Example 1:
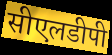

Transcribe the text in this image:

सीएलडीपी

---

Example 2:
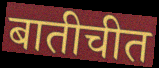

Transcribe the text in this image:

बातीचीत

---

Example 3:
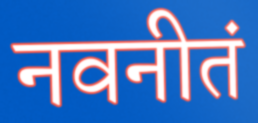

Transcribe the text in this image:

नवनीतं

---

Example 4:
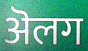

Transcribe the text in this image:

ऄलग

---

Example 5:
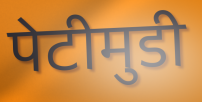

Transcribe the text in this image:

पेटीमुडी